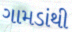
ગામડાંથી